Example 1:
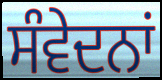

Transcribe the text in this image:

ਸੰਵੇਦਨਾਂ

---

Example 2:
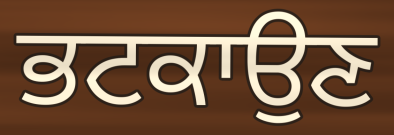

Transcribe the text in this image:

ਭਟਕਾਉਣ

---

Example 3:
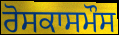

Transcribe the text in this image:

ਰੋਸਕਾਸਮੌਸ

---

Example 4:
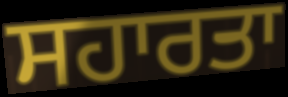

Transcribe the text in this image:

ਸਹਾਰਤਾ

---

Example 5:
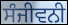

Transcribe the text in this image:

ਸੰਜੀਵਨੀ